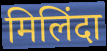
मिलिंदा